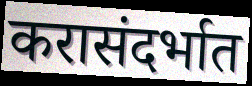
करासंदर्भात